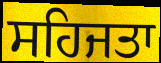
ਸਹਿਜਤਾ